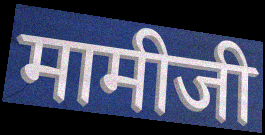
मामीजी